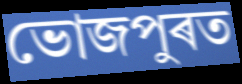
ভোজপুৰত